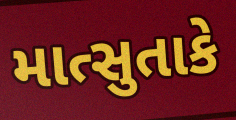
માત્સુતાકે